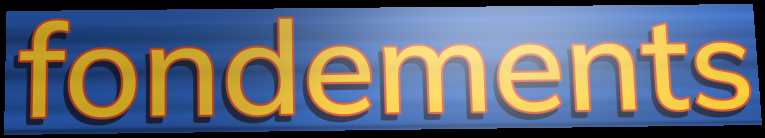
fondements